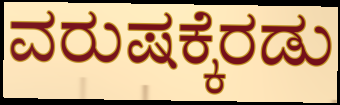
ವರುಷಕ್ಕೆರಡು